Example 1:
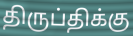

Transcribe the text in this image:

திருப்திக்கு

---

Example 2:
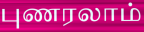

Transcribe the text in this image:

புணரலாம்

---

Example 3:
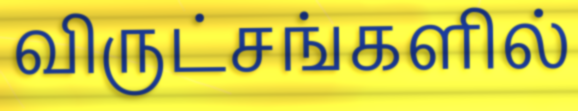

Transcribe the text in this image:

விருட்சங்களில்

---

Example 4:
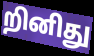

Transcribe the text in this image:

றினிது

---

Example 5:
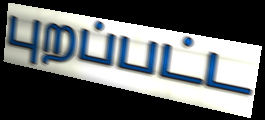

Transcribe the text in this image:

புறப்பட்ட